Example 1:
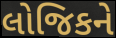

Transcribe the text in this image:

લોજિકને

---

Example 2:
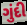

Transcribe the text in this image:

ગુંદી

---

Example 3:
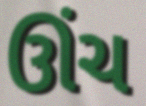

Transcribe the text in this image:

ઊંચ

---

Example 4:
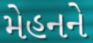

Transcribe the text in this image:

મેહનને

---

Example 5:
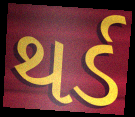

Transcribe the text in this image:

થર્ડ